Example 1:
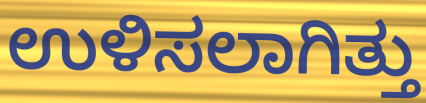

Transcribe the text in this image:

ಉಳಿಸಲಾಗಿತ್ತು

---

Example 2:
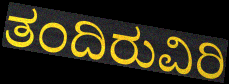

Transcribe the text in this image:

ತಂದಿರುವಿರಿ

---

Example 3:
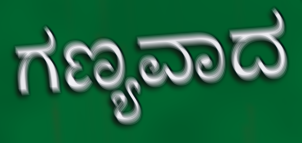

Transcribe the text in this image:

ಗಣ್ಯವಾದ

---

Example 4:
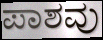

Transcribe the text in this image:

ಪಾಶವು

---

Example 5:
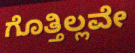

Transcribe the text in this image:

ಗೊತ್ತಿಲ್ಲವೇ